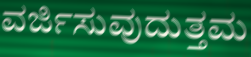
ವರ್ಜಿಸುವುದುತ್ತಮ